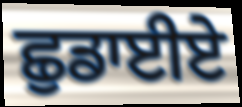
ਛੁਡਾਈਏ